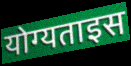
योग्यताइस